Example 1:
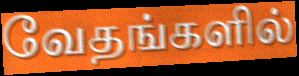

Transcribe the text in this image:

வேதங்களில்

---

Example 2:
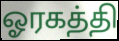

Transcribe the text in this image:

ஓரகத்தி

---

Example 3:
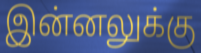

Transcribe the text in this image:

இன்னலுக்கு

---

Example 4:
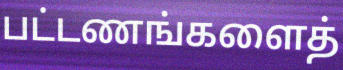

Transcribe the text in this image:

பட்டணங்களைத்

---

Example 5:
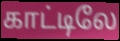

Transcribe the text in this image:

காட்டிலே